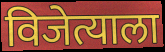
विजेत्याला